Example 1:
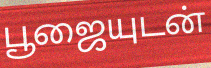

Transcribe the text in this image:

பூஜையுடன்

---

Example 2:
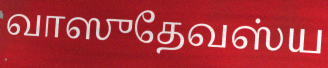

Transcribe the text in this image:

வாஸுதேவஸ்ய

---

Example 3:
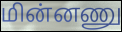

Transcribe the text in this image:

மின்னணு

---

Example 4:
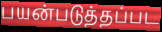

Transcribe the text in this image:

பயன்படுத்தப்பட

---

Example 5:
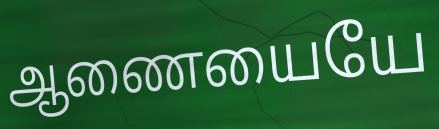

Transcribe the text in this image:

ஆணையையே